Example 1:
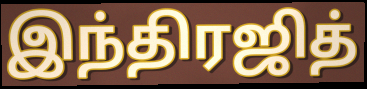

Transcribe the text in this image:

இந்திரஜித்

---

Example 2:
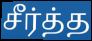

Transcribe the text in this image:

சீர்த்த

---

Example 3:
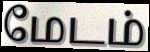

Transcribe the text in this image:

மேடம்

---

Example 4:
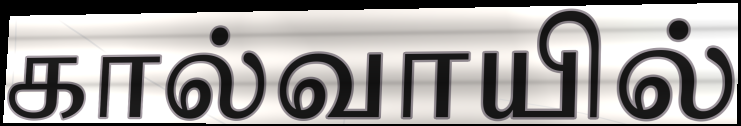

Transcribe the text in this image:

கால்வாயில்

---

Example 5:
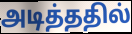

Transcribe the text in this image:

அடித்ததில்